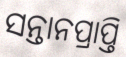
ସନ୍ତାନପ୍ରାପ୍ତି